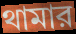
থামার